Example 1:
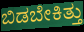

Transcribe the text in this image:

ಬಿಡಬೇಕಿತ್ತು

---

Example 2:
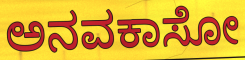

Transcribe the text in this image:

ಅನವಕಾಸೋ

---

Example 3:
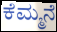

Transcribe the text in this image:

ಕೆಮ್ಮನೆ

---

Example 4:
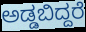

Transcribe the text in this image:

ಅಡ್ಡಬಿದ್ದರೆ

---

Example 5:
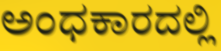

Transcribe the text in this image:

ಅಂಧಕಾರದಲ್ಲಿ